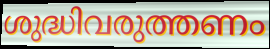
ശുദ്ധിവരുത്തണം